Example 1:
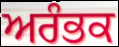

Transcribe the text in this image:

ਅਰੰਭਕ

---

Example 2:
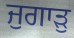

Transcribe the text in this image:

ਜੁਗਾੜੁ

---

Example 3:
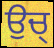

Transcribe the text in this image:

ਉਚ੍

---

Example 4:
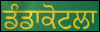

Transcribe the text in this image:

ਡੰਡਾਕੋਟਲਾ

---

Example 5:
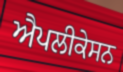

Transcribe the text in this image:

ਐਪਲੀਕੇਸਨ